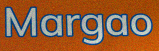
Margao